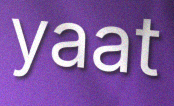
yaat